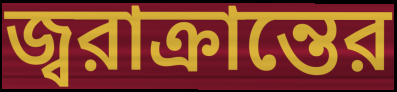
জ্বরাক্রান্তের